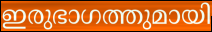
ഇരുഭാഗത്തുമായി